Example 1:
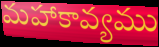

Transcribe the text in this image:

మహాకావ్యము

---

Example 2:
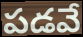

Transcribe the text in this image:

పడవే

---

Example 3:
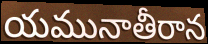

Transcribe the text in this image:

యమునాతీరాన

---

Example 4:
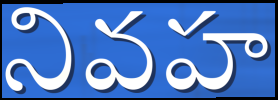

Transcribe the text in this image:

నివహ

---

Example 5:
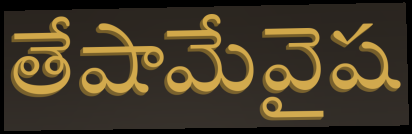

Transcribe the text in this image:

తేషామేవైష